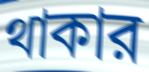
থাকার